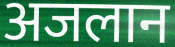
अजलान